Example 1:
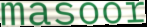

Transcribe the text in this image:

masoor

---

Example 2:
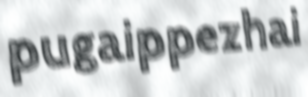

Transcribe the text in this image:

pugaippezhai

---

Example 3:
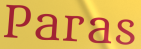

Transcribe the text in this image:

Paras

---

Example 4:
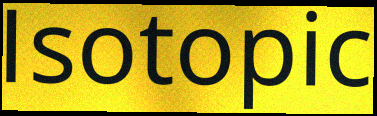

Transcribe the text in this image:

Isotopic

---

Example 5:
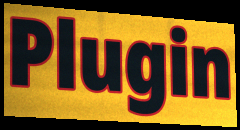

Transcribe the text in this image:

Plugin